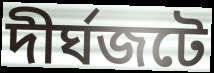
দীর্ঘজটে